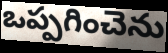
ఒప్పగించెను